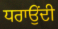
ਧਰਾਉਂਦੀ